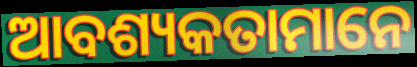
ଆବଶ୍ୟକତାମାନେ